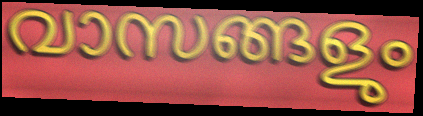
വാസങ്ങളും